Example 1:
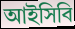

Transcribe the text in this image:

আইসিবি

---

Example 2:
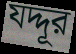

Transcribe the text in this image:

যদ্দূর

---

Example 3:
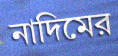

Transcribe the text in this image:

নাদিমের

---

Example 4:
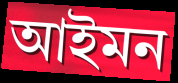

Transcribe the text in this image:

আইমন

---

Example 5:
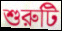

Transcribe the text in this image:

শুরুটি